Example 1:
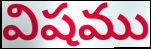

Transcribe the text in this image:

విషము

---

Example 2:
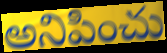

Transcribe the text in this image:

అనిపించు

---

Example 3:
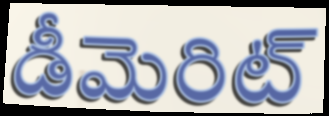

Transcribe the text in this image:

డీమెరిట్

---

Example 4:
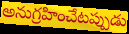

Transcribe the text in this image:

అనుగ్రహించేటప్పుడు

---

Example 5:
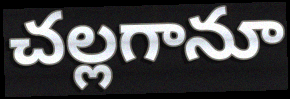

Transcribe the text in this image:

చల్లగానూ